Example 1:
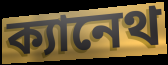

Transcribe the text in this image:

ক্যানেথ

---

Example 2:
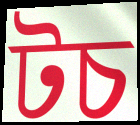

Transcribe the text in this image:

টচ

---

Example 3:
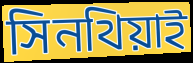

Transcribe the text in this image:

সিনথিয়াই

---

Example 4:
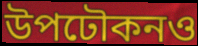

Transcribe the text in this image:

উপঢৌকনও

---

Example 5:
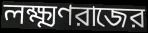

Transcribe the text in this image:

লক্ষ্মণরাজের